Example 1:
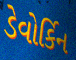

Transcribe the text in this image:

ડેવોર્કિન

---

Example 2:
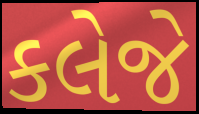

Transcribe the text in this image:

કલેજે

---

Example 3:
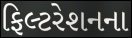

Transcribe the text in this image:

ફિલ્ટરેશનના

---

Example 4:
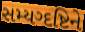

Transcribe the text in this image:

સમ્યગ્દષ્ટિને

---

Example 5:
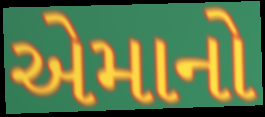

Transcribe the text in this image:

એમાનો